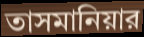
তাসমানিয়ার